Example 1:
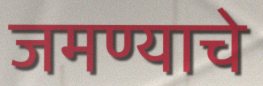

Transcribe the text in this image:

जमण्याचे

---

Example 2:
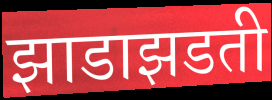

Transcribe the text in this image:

झाडाझडती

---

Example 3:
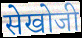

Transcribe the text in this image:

सेखोजी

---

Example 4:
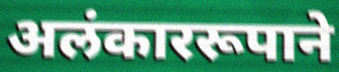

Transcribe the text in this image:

अलंकाररूपाने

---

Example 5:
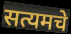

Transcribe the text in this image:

सत्यमचे